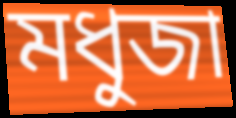
মধুজা